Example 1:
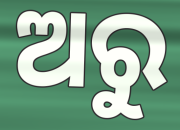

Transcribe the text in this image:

ଅରୁ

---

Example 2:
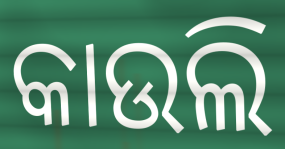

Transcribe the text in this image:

କାଉଲି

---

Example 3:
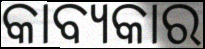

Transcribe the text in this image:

କାବ୍ୟକାର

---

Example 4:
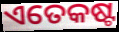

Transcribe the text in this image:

ଏତେକଷ୍ଟ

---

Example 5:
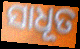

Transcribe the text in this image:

ସାଧୂତ